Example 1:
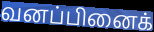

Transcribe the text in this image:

வனப்பினைக்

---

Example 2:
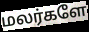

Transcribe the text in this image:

மலர்களே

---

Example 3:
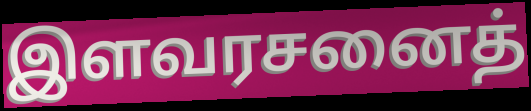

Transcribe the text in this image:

இளவரசனைத்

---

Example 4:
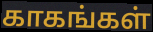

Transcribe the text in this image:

காகங்கள்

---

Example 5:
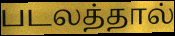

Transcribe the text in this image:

படலத்தால்